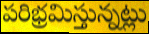
పరిభ్రమిస్తున్నట్లు